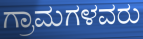
ಗ್ರಾಮಗಳವರು